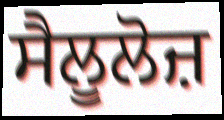
ਸੈਲੂਲੋਜ਼